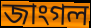
জাংগল